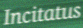
Incitatus